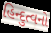
હિન્દુત્વનો